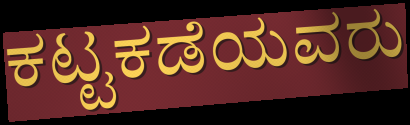
ಕಟ್ಟಕಡೆಯವರು